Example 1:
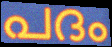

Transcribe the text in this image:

പദം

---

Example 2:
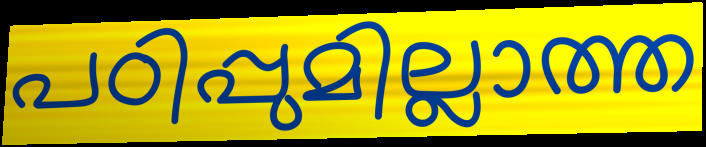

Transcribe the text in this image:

പഠിപ്പുമില്ലാത്ത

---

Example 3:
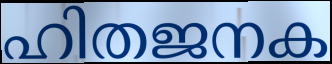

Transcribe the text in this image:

ഹിതജനക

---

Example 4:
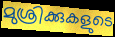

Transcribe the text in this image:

മുശ്രിക്കുകളുടെ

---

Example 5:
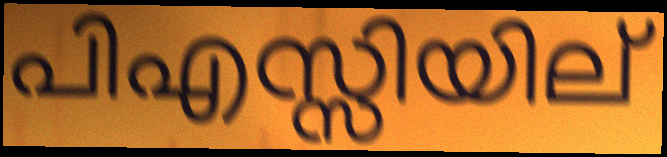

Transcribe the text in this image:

പിഎസ്സിയില്